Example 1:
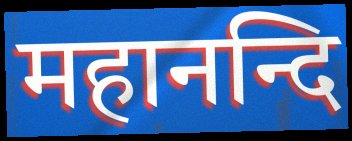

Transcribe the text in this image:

महानन्दि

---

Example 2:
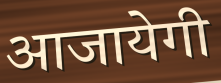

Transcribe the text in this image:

आजायेगी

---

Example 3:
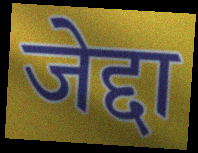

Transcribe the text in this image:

जेद्दा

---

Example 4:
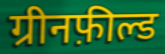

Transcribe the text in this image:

ग्रीनफ़ील्ड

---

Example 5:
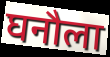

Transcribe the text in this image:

घनौला